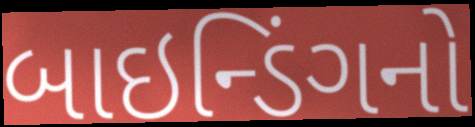
બાઇન્ડિંગનો